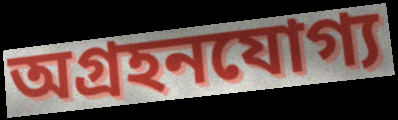
অগ্রহনযোগ্য